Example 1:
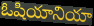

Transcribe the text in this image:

ఓషియానియా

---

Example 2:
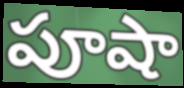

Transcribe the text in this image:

పూషా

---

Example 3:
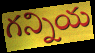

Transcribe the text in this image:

గన్నియ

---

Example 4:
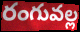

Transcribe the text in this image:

రంగువల్ల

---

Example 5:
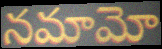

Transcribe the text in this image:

నమామో